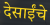
देसाईंचे